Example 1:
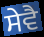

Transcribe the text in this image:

ਸੇਵੈ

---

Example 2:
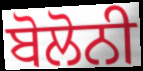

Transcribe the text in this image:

ਬੋਲੋਨੀ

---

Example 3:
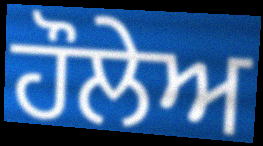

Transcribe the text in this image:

ਹੌਲੇਅ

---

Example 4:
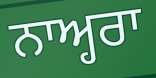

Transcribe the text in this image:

ਨਾਅ੍ਹਰਾ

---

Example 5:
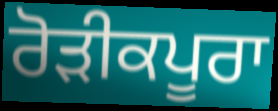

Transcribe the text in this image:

ਰੋੜੀਕਪੂਰਾ